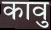
कावु